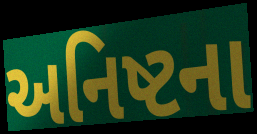
અનિષ્ટના